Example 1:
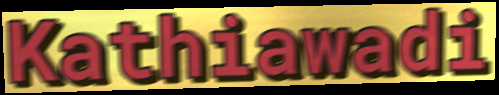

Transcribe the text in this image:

Kathiawadi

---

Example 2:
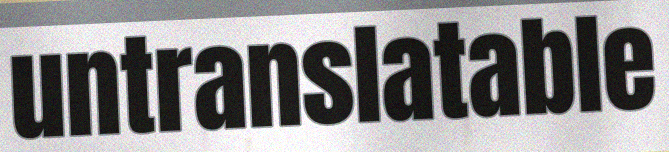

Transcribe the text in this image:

untranslatable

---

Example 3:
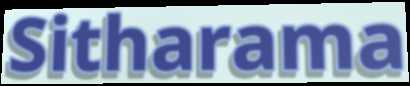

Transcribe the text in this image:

Sitharama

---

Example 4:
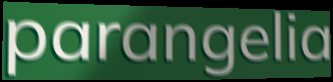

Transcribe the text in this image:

parangelia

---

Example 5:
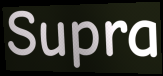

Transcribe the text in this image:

Supra